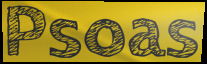
Psoas